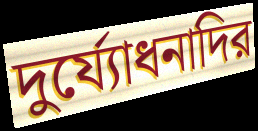
দুর্য্যোধনাদির